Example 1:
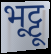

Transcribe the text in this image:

भूट्टू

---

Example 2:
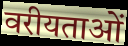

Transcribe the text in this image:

वरीयताओं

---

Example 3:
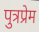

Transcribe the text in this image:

पुत्रप्रेम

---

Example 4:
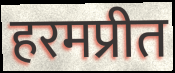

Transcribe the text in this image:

हरमप्रीत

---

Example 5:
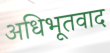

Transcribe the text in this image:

अधिभूतवाद